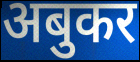
अबुकर